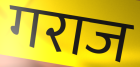
गराज